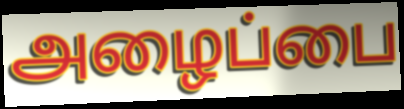
அழைப்பை